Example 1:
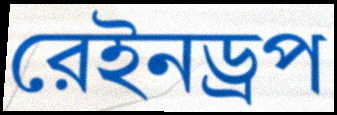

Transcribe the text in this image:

রেইনড্রপ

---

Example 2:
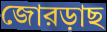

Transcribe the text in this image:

জোরড়াছ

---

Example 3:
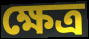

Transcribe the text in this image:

ক্ষেত্র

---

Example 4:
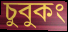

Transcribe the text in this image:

চুবুকং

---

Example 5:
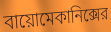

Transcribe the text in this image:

বায়োমেকানিক্সের